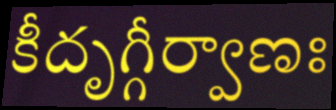
కీదృగ్గీర్వాణః